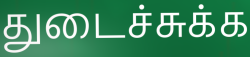
துடைச்சுக்க